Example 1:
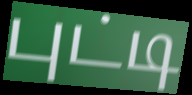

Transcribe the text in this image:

புட்டி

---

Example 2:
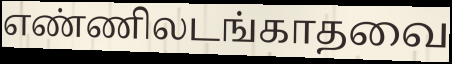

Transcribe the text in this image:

எண்ணிலடங்காதவை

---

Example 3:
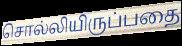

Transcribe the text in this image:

சொல்லியிருப்பதை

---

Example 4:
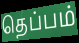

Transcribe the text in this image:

தெப்பம்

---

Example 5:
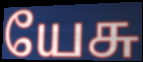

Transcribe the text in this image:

யேசு